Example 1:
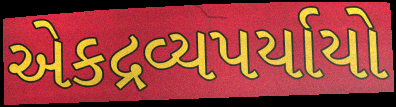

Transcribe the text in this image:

એકદ્રવ્યપર્યાયો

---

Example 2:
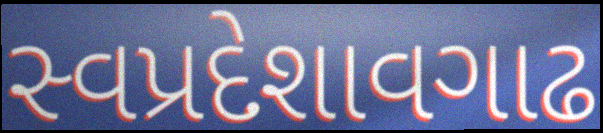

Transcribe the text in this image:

સ્વપ્રદેશાવગાઢ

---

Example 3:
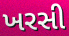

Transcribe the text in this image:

ખરસી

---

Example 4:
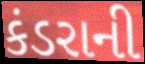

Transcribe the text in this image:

કંડરાની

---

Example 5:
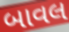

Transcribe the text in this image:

બાવલ